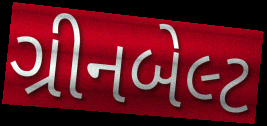
ગ્રીનબેલ્ટ